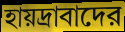
হায়দ্রাবাদের